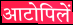
आटोपिलें